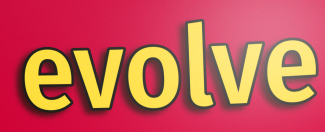
evolve